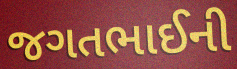
જગતભાઈની